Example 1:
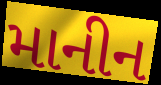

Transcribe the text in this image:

માનીન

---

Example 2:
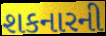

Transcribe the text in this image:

શકનારની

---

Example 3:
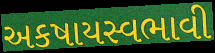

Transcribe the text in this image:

અકષાયસ્વભાવી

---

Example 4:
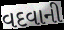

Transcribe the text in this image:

વદવાની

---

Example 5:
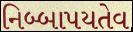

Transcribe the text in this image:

નિબ્બાપયતેવ